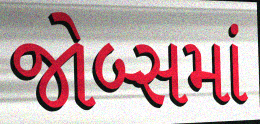
જોબ્સમાં